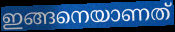
ഇങ്ങനെയാണത്